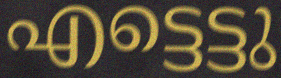
എട്ടെട്ടു